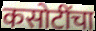
कसोटींचा